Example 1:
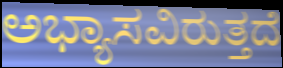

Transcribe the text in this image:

ಅಭ್ಯಾಸವಿರುತ್ತದೆ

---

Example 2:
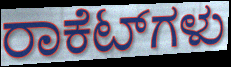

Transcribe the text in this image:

ರಾಕೆಟ್‌ಗಳು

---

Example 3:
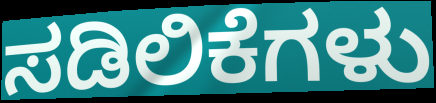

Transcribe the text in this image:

ಸಡಿಲಿಕೆಗಳು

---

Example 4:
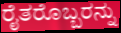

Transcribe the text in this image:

ರೈತರೊಬ್ಬರನ್ನು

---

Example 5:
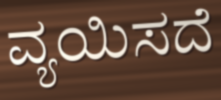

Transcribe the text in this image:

ವ್ಯಯಿಸದೆ